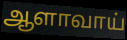
ஆளாவாய்